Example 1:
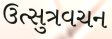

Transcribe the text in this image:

ઉત્સુત્રવચન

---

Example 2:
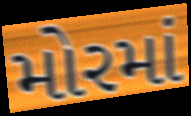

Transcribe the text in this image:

મોરમાં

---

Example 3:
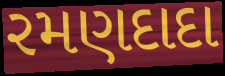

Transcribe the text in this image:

રમણદાદા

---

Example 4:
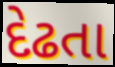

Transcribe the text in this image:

દેઢતા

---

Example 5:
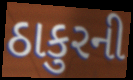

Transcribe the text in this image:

ઠાકુરની